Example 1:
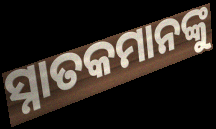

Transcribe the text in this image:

ସ୍ନାତକମାନଙ୍କୁ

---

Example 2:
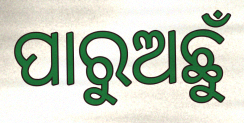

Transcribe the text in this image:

ପାରୁଅଛୁଁ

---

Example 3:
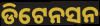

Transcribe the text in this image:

ଡିଟେନସନ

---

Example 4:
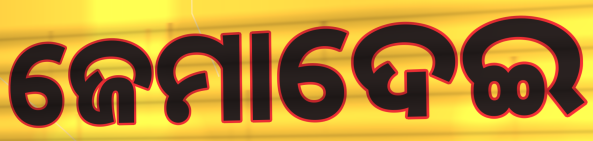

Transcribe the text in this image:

ଜେମାଦେଇ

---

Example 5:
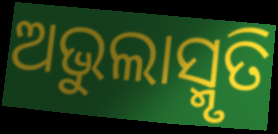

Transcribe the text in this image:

ଅଭୁଲାସ୍ମୃତି